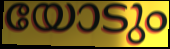
യോടും